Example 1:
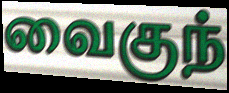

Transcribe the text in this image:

வைகுந்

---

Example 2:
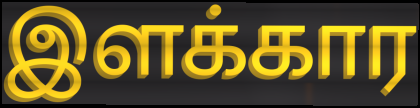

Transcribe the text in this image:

இளக்கார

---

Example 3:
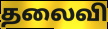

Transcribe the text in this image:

தலைவி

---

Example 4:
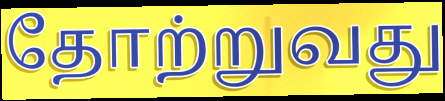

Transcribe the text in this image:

தோற்றுவது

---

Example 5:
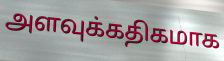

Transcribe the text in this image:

அளவுக்கதிகமாக